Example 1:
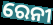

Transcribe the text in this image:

ରେନୀ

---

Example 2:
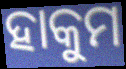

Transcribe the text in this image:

ହାକୁମ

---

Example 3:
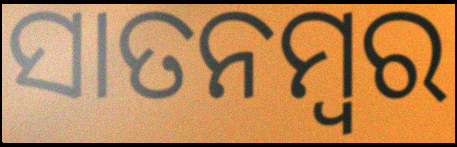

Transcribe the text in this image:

ସାତନମ୍ବର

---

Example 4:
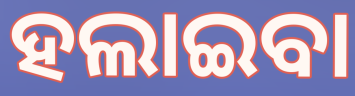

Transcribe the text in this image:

ହଲାଇବା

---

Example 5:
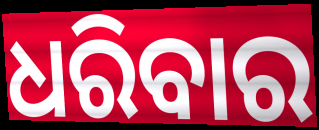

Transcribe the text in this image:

ଧରିବାର